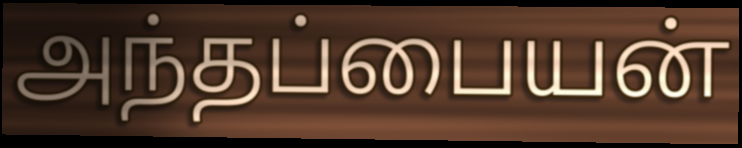
அந்தப்பையன்